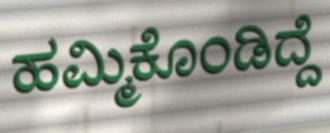
ಹಮ್ಮಿಕೊಂಡಿದ್ದೆ